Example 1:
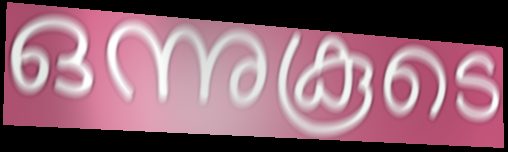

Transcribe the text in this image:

ഒന്നുകൂടെ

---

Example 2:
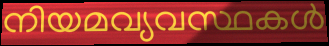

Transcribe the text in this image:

നിയമവ്യവസ്ഥകൾ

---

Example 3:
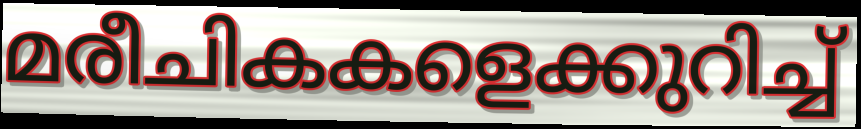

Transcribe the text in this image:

മരീചികകളെക്കുറിച്ച്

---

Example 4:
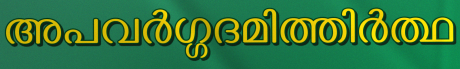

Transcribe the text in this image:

അപവർഗ്ഗദമിത്തിർത്ഥ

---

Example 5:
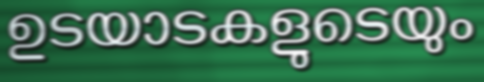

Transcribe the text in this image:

ഉടയാടകളുടെയും